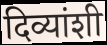
दिव्यांशी